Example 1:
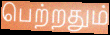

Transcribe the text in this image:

பெற்றதும்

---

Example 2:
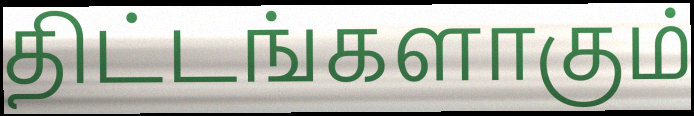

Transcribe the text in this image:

திட்டங்களாகும்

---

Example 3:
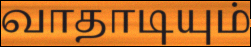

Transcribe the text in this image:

வாதாடியும்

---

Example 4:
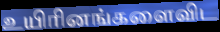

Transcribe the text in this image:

உயிரினங்களைவிட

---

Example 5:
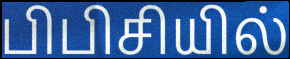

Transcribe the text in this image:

பிபிசியில்